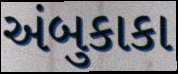
અંબુકાકા